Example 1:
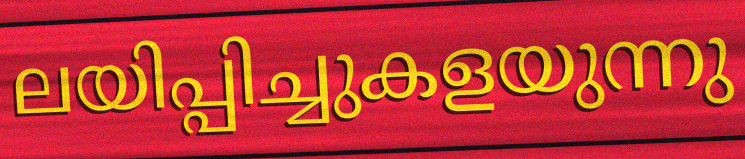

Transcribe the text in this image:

ലയിപ്പിച്ചുകളയുന്നു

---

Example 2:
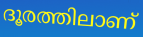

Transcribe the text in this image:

ദൂരത്തിലാണ്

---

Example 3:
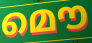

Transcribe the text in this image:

മൌ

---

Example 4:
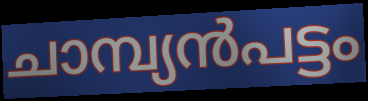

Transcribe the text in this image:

ചാമ്പ്യൻപട്ടം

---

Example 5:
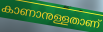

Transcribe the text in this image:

കാണാനുള്ളതാണ്